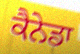
ਕੈਨੇਡਾ